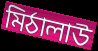
মিঠালাউ